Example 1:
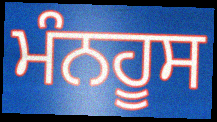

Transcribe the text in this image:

ਮੰਨਹੂਸ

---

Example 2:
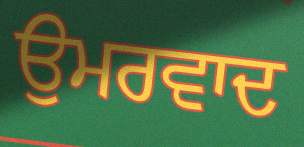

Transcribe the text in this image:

ਉਮਰਵਾਦ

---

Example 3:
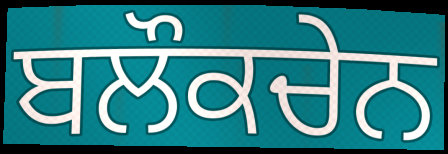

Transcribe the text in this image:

ਬਲੌਕਚੇਨ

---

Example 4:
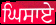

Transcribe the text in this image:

ਘਿਸਾਏ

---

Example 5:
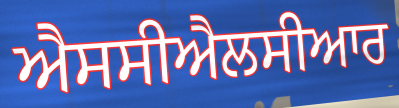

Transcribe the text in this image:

ਐਸਸੀਐਲਸੀਆਰ